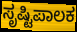
ಸೃಷ್ಟಿಪಾಲಕ